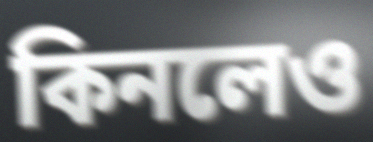
কিনলেও